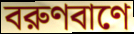
বরুণবাণে